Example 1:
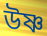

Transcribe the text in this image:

উষ্ণ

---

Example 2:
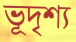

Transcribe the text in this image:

ভূদৃশ্য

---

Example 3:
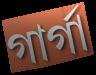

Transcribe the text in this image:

গার্গা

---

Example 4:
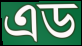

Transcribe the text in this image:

এড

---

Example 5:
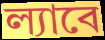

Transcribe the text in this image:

ল্যাবে